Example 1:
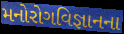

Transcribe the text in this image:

મનોરોગવિજ્ઞાનના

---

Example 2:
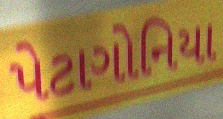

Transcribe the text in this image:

પેટાગોનિયા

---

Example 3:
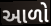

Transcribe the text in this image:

આળો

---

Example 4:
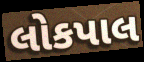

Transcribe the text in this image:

લોકપાલ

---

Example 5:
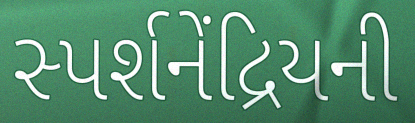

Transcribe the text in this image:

સ્પર્શનેંદ્રિયની